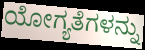
ಯೋಗ್ಯತೆಗಳನ್ನು